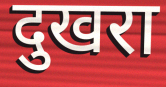
दुखरा